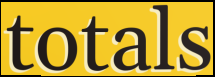
totals